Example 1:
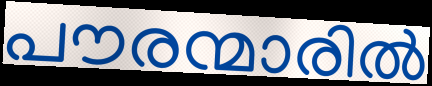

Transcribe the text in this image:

പൗരന്മാരിൽ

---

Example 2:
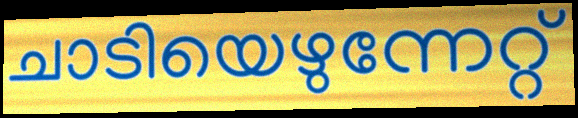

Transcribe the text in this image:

ചാടിയെഴുന്നേറ്റ്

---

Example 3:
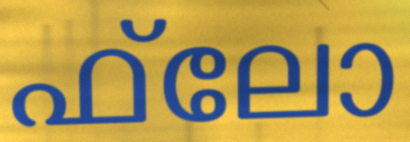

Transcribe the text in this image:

ഫ്‌ലോ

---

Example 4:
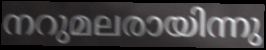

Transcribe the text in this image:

നറുമലരായിന്നു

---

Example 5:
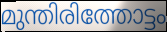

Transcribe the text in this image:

മുന്തിരിത്തോട്ടം